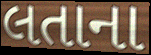
લતાના